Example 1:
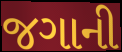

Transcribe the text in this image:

જગાની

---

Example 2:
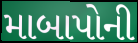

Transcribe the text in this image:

માબાપોની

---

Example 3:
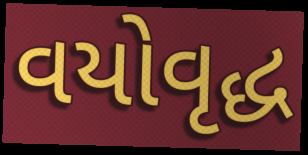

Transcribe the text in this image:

વયોવૃદ્ધ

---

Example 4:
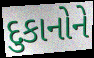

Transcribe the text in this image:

દુકાનોને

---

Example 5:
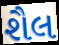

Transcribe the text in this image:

શૈલ